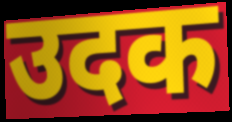
उदक